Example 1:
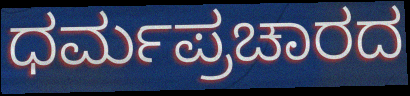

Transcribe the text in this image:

ಧರ್ಮಪ್ರಚಾರದ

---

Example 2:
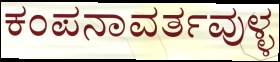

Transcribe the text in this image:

ಕಂಪನಾವರ್ತವುಳ್ಳ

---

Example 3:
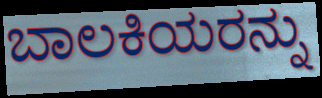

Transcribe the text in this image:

ಬಾಲಕಿಯರನ್ನು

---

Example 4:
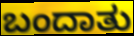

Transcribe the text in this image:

ಬಂದಾತು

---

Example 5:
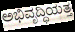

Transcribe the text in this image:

ಅಭಿವೃದ್ಧಿಯತ್ತ